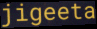
jigeeta